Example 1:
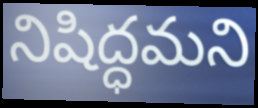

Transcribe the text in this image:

నిషిద్ధమని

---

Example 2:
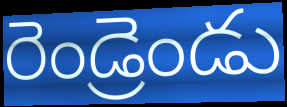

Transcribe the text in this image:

రెండ్రెండు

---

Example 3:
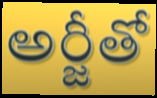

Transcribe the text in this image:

అర్జీతో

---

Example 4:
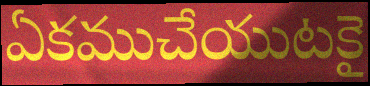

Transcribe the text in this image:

ఏకముచేయుటకై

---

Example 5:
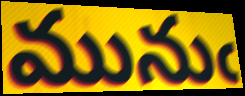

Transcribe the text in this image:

మునుఁ